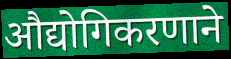
औद्योगिकरणाने